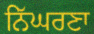
ਨਿੱਘਰਣਾ